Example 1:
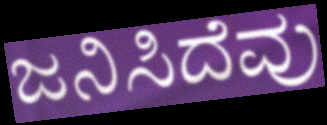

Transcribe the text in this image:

ಜನಿಸಿದೆವು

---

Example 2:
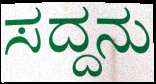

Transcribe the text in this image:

ಸದ್ದನು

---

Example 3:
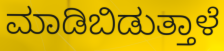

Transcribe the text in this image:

ಮಾಡಿಬಿಡುತ್ತಾಳೆ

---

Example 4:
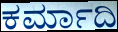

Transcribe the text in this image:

ಕರ್ಮಾದಿ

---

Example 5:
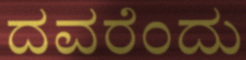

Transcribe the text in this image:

ದವರೆಂದು